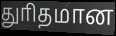
துரிதமான